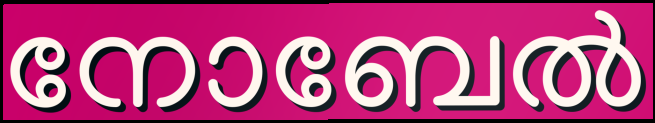
നോബേൽ